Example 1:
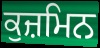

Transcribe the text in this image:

ਕੁਜ਼ਮਿਨ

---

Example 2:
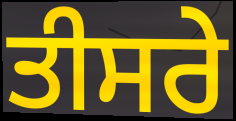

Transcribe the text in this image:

ਤੀਸਰੇ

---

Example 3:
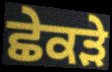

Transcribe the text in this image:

ਛੇਕੜੇ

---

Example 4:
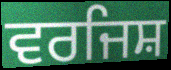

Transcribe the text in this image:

ਵਰਜਿਸ਼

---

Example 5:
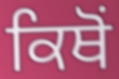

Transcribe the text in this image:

ਕਿਥੋਂ